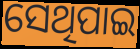
ସେଥିପାଇ